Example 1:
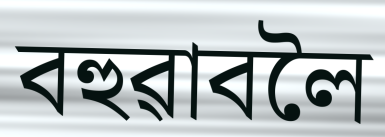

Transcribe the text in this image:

বহুৱাবলৈ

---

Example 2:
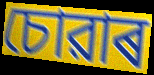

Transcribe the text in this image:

চোৱাৰ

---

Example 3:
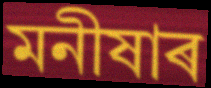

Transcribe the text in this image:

মনীষাৰ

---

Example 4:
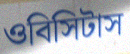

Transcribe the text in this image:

ওবিসিটাস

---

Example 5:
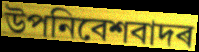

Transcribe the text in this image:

উপনিবেশবাদৰ